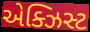
એક્ઝિસ્ટ